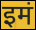
इमं